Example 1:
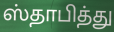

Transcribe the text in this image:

ஸ்தாபித்து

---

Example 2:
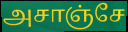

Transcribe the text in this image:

அசாஞ்சே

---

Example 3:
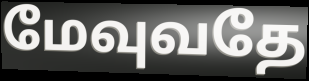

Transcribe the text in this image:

மேவுவதே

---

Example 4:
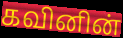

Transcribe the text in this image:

கவினின்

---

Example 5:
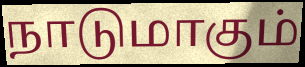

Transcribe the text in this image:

நாடுமாகும்